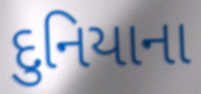
દુનિયાના